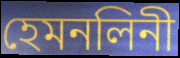
হেমনলিনী